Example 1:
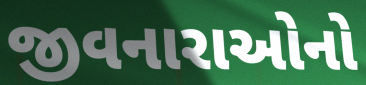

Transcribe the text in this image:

જીવનારાઓનો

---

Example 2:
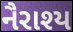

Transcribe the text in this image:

નૈરાશ્ય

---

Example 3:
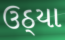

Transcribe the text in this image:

ઉઠ્યા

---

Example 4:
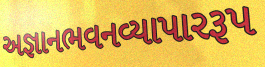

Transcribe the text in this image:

અજ્ઞાનભવનવ્યાપારરૂપ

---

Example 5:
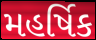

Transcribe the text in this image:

મહર્ષિક